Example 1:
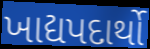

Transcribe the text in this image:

ખાદ્યપદાર્થો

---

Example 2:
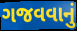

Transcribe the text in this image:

ગજવવાનું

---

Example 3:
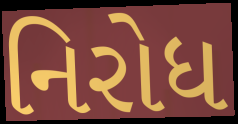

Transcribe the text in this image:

નિરોધ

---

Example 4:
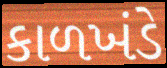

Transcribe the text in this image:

કાળખંડે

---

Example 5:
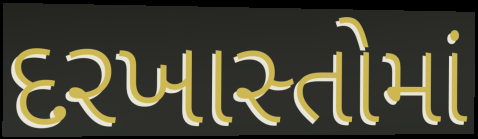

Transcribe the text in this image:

દરખાસ્તોમાં